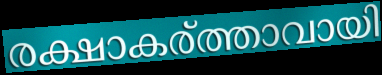
രക്ഷാകര്ത്താവായി